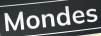
Mondes